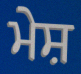
ਮੇਸ਼